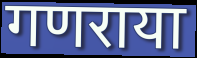
गणराया